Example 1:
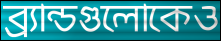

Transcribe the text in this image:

ব্র্যান্ডগুলোকেও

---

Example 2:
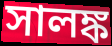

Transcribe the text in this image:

সালঙ্ক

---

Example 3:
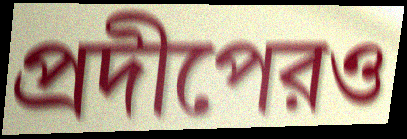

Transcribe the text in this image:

প্রদীপেরও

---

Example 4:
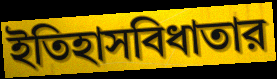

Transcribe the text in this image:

ইতিহাসবিধাতার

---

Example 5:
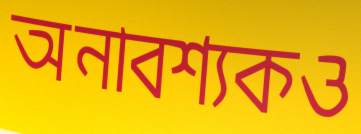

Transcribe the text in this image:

অনাবশ্যকও